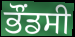
ਭੌਂਡਸੀ